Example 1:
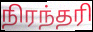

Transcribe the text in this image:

நிரந்தரி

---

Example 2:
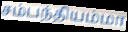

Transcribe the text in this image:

சம்பந்தியம்மா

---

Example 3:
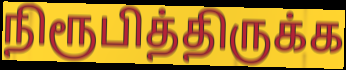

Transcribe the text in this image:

நிரூபித்திருக்க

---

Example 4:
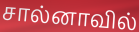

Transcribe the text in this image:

சால்னாவில்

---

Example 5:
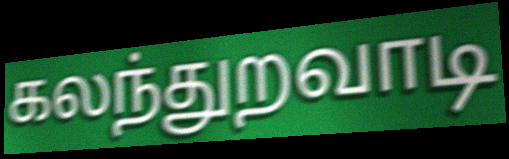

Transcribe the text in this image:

கலந்துறவாடி